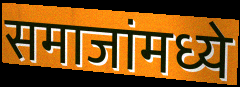
समाजांमध्ये